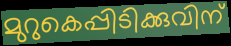
മുറുകെപ്പിടിക്കുവിന്